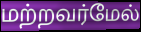
மற்றவர்மேல்